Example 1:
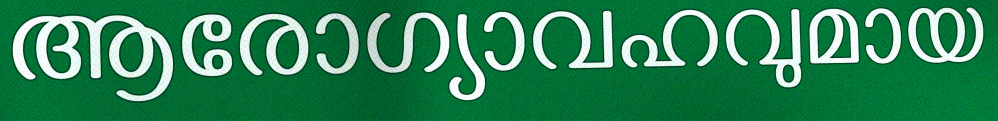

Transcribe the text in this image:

ആരോഗ്യാവഹവുമായ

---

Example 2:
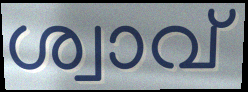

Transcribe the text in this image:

ശ്വാവ്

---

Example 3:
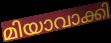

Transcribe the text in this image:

മിയാവാക്കി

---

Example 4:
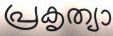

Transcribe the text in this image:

പ്രകൃത്യാ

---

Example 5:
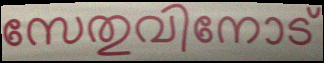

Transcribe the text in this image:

സേതുവിനോട്